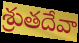
శ్రుతదేవా